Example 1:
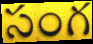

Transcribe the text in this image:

సంగ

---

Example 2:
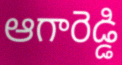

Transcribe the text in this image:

ఆగారెడ్డి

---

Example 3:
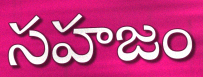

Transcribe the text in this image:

సహజం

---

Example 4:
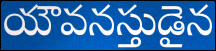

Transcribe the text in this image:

యౌవనస్తుడైన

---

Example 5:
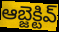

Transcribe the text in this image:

ఆబ్జెక్టివ్